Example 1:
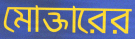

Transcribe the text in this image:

মোক্তারের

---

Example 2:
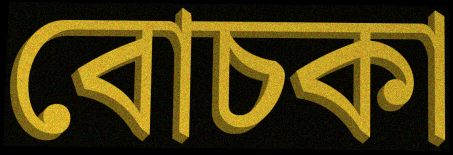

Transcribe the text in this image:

বোচকা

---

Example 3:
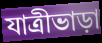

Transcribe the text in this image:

যাত্রীভাড়া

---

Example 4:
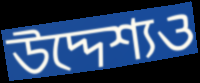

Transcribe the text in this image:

উদ্দেশ্যও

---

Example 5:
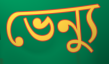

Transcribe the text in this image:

ভেন্যু